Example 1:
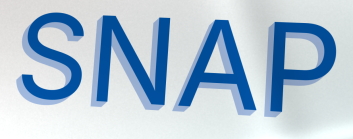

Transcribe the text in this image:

SNAP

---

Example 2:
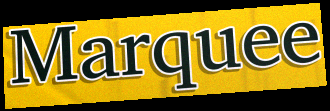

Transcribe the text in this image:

Marquee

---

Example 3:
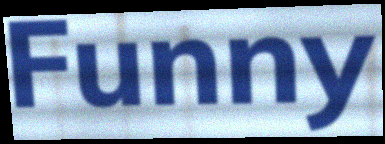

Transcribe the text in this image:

Funny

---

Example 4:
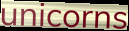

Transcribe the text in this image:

unicorns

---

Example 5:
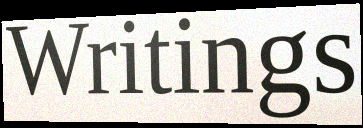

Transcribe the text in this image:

Writings